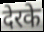
देरके